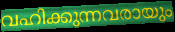
വഹിക്കുന്നവരായും